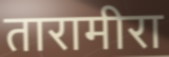
तारामीरा